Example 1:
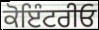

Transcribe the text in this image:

ਕੋਇੰਟਰੀਓ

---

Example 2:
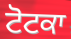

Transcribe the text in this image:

ਟੋਟਕਾ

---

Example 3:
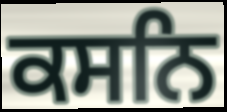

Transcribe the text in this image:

ਕਸਨਿ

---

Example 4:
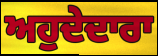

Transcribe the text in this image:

ਅਹੁਦੇਦਾਰਾ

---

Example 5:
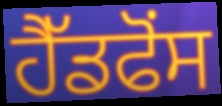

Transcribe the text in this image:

ਹੈੱਡਫੋਂਸ